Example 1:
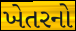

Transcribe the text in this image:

ખેતરનો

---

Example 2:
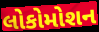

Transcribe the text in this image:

લોકોમોશન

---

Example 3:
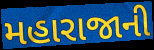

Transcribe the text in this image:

મહારાજાની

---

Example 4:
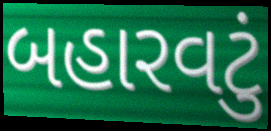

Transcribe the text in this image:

બહારવટું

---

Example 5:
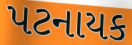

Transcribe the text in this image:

પટનાયક